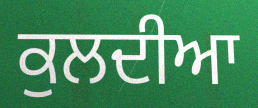
ਕੁਲਦੀਆ